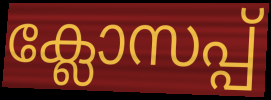
ക്ലോസപ്പ്